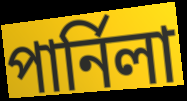
পার্নিলা